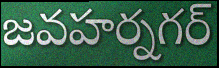
జవహర్నగర్